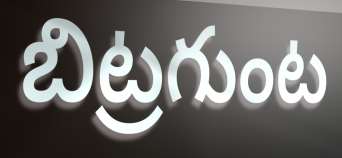
బిట్రగుంట